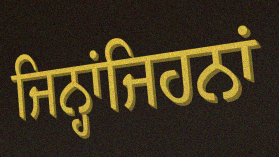
ਜਿਨ੍ਹਾਂਜਿਹਨਾਂ